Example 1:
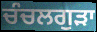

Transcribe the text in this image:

ਚੰਚਲਗੁੜਾ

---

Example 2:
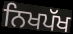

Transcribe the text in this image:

ਨਿਖਪੱਖ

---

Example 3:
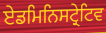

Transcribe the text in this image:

ਏਡਮਿਨਿਸਟ੍ਰੇਟਿਵ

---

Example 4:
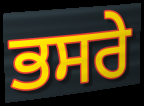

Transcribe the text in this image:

ਭਸਰੇ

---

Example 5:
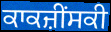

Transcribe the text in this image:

ਕਾਕਜ਼ੀੰਸਕੀ